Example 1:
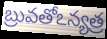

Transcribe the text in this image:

బ్రువతోఽన్యత్ర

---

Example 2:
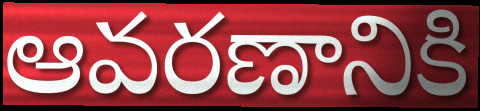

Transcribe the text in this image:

ఆవరణానికి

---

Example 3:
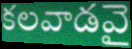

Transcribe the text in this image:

కలవాడవై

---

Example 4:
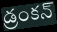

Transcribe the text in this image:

డ్రంకన్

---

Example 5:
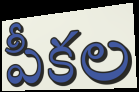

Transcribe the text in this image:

పీకల